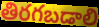
తిరగబడాలి